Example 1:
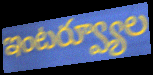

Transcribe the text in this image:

ఇంటర్వ్యూల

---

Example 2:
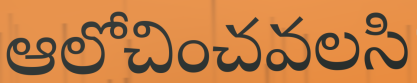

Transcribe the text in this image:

ఆలోచించవలసి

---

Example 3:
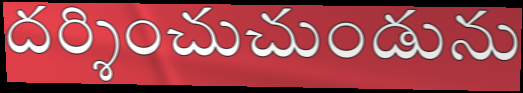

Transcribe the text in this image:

దర్శించుచుండును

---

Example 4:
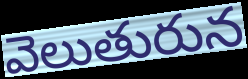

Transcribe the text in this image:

వెలుతురున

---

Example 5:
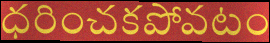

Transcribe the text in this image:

ధరించకపోవటం